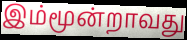
இம்மூன்றாவது